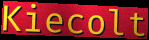
Kiecolt